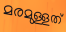
മരമുള്ളത്